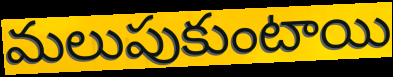
మలుపుకుంటాయి